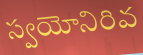
స్వయోనిరివ